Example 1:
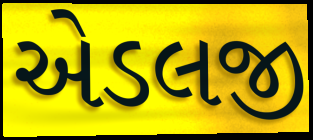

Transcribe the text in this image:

એડલજી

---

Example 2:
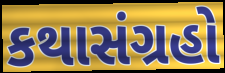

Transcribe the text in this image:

કથાસંગ્રહો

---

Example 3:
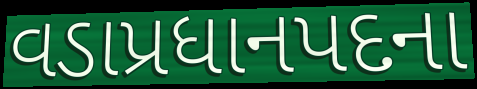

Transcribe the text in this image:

વડાપ્રધાનપદના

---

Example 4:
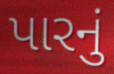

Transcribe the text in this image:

પારનું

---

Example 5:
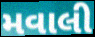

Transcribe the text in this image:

મવાલી